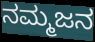
ನಮ್ಮಜನ